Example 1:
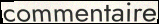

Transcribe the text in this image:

commentaire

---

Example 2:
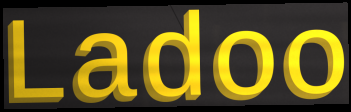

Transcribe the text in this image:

Ladoo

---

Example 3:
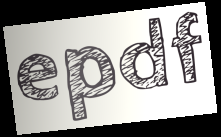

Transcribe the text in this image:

epdf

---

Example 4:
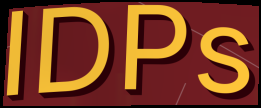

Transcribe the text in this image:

IDPs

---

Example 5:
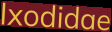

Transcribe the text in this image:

Ixodidae